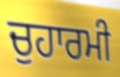
ਚੁਹਾਰਮੀ